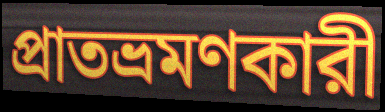
প্রাতভ্রমণকারী